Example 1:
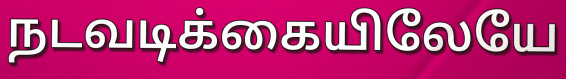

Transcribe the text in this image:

நடவடிக்கையிலேயே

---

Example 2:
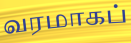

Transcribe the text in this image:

வரமாகப்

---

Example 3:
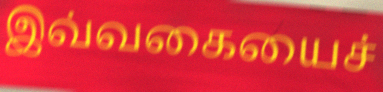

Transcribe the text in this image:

இவ்வகையைச்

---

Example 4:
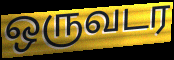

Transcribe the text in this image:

ஒருவடர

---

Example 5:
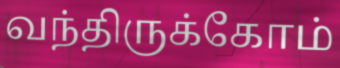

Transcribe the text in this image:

வந்திருக்கோம்